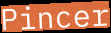
Pincer